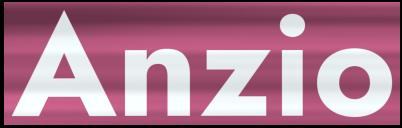
Anzio